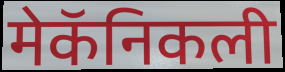
मेकॅनिकली